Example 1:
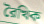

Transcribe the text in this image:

রৈখিক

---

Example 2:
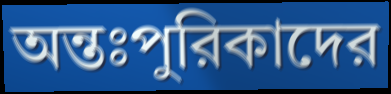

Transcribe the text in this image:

অন্তঃপুরিকাদের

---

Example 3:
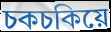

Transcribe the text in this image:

চকচকিয়ে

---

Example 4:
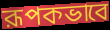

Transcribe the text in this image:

রূপকভাবে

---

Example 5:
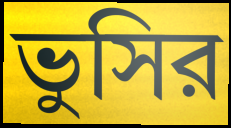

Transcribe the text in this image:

ভুসির